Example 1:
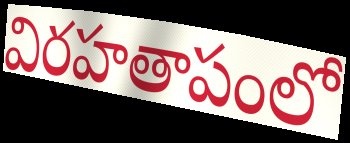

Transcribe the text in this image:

విరహతాపంలో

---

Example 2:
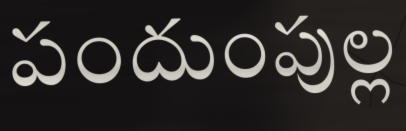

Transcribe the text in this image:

పందుంపుల్ల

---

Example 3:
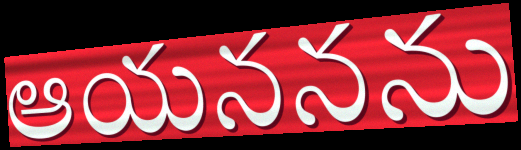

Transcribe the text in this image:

ఆయననను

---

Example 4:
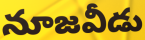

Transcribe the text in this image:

నూజవీడు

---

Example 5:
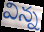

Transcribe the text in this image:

విన్న